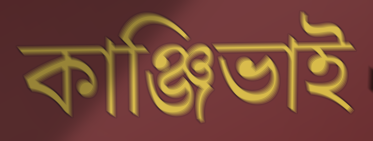
কাঞ্জিভাই